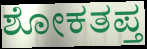
ಶೋಕತಪ್ತ